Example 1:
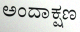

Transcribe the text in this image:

ಅಂದಾಕ್ಷಣ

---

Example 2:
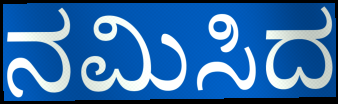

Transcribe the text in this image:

ನಮಿಸಿದ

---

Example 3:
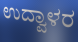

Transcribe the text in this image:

ಉದ್ವಾಳರ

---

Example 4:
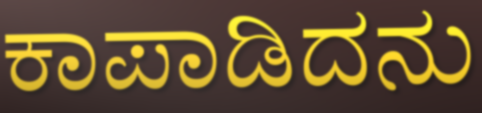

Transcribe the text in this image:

ಕಾಪಾಡಿದನು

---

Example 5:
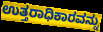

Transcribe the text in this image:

ಉತ್ತರಾಧಿಕಾರವನ್ನು